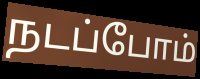
நடப்போம்